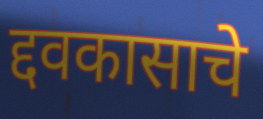
द्दवकासाचे